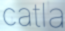
catla